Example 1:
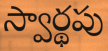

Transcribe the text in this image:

స్వార్థపు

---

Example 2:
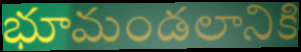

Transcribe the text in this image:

భూమండలానికి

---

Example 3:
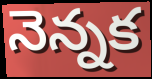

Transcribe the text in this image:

నెన్నక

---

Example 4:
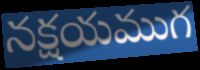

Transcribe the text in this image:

నక్షయముగ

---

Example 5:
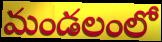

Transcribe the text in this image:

మండలంలో